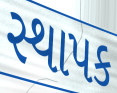
સ્થાપક